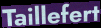
Taillefert